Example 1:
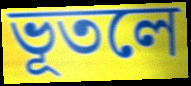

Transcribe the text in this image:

ভূতলে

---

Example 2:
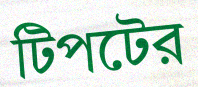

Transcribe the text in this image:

টিপটের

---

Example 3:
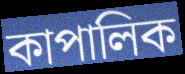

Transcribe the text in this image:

কাপালিক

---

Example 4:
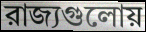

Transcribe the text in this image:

রাজ্যগুলোয়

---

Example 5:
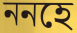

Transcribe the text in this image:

ননহে